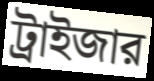
ট্রাইজার